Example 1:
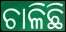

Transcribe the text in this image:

ଚାଳିଛି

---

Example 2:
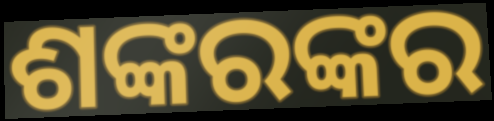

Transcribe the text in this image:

ଶଙ୍କରଙ୍କର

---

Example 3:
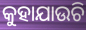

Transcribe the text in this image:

କୁହାଯାଉଚି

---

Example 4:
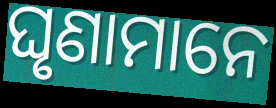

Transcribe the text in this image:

ଘୃଣାମାନେ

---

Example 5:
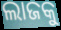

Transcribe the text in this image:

ଲାଜକୁ